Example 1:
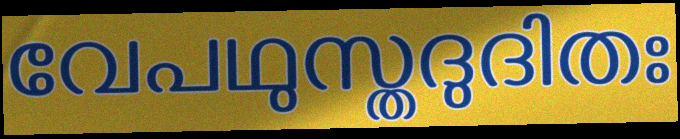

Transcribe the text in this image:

വേപഥുസ്തദുദിതഃ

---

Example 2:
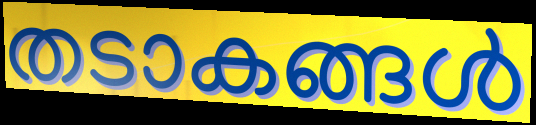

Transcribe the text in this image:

തടാകങ്ങൾ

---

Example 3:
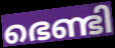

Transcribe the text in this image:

ഭെണ്ടി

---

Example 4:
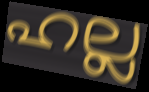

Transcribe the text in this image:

ഹല്ല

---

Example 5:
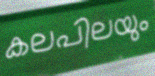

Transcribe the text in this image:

കലപിലയും